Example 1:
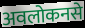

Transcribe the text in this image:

अवलोकनसे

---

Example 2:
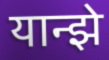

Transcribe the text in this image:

यान्झे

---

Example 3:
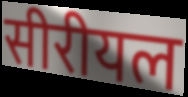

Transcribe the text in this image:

सीरीयल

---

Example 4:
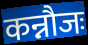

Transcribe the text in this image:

कन्नौजः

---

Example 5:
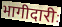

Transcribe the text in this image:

भागीदारीः